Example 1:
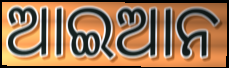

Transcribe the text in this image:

ଆଇଆନ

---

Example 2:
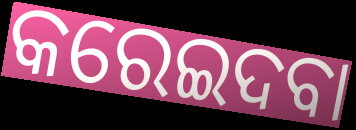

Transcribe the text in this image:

କରେଇଦବା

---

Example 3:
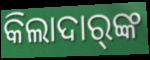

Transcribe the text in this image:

କିଲାଦାର୍‍ଙ୍କ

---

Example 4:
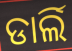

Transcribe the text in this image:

ଡାର୍ଲି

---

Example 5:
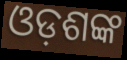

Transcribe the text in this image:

ଓଡ଼ଶଙ୍କ